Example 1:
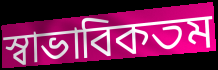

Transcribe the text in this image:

স্বাভাবিকতম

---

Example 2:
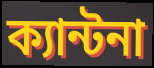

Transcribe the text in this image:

ক্যান্টনা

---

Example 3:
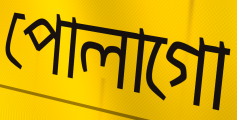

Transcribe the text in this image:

পোলাগো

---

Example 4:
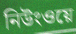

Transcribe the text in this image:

নিউংওয়ে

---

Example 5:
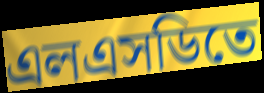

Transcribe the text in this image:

এলএসডিতে